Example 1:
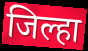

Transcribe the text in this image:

जिल्हा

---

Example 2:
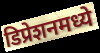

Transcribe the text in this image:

डिप्रेशनमध्ये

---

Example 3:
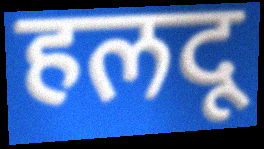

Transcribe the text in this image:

हलदू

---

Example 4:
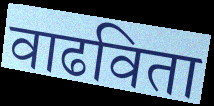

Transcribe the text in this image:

वाढविता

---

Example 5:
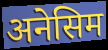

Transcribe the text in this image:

अनेसिम